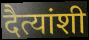
दैत्यांशी